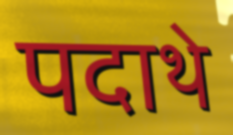
पदाथे